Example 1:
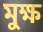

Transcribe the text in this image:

মুক্ষ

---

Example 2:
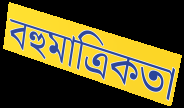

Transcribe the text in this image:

বহুমাত্রিকতা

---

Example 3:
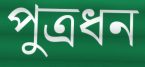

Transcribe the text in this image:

পুত্রধন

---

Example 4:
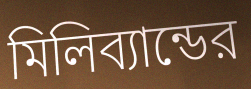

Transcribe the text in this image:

মিলিব্যান্ডের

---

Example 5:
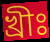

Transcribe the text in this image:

খ্রীঃ